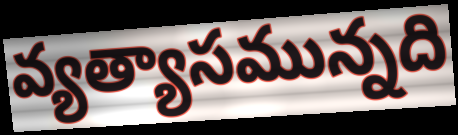
వ్యత్యాసమున్నది